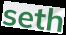
seth